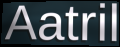
Aatril